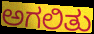
ಅಗಲಿತು